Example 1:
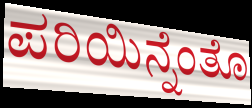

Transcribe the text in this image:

ಪರಿಯಿನ್ನೆಂತೊ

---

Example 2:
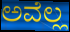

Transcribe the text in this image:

ಅವೆಲ್ಲ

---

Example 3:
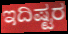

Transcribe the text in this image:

ಇದಿಷ್ಟರ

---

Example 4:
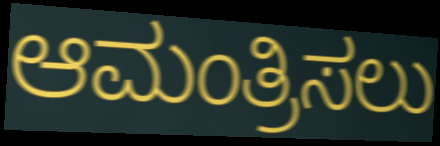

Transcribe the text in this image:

ಆಮಂತ್ರಿಸಲು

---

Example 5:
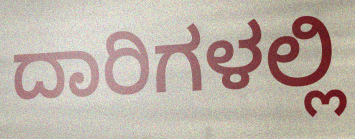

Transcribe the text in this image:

ದಾರಿಗಳಲ್ಲಿ